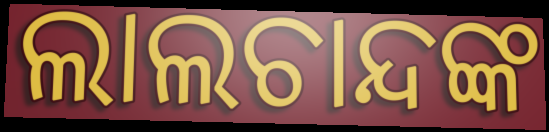
ଲାଲଚାନ୍ଦଙ୍କ